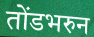
तोंडभरुन